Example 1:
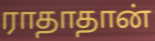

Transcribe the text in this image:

ராதாதான்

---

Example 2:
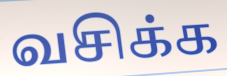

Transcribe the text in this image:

வசிக்க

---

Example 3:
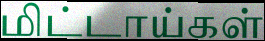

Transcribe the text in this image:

மிட்டாய்கள்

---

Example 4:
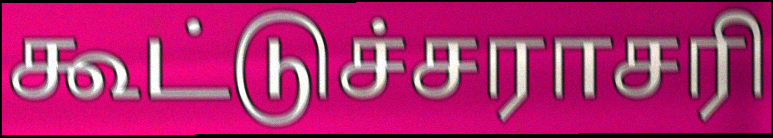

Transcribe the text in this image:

கூட்டுச்சராசரி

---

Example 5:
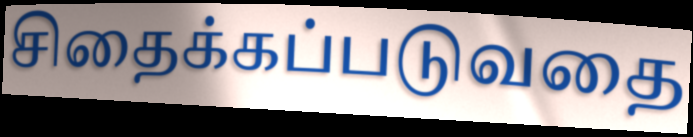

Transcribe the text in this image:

சிதைக்கப்படுவதை